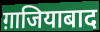
ग़ाजियाबाद